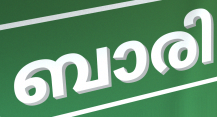
ബാരി